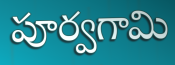
పూర్వగామి